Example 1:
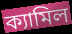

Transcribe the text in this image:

ক্যামিল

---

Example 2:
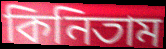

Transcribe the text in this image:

কিনিতাম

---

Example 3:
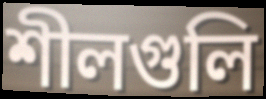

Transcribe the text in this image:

শীলগুলি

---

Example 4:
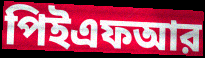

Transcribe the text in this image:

পিইএফআর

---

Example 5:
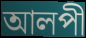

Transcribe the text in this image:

আলপী